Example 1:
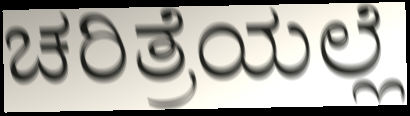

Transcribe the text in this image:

ಚರಿತ್ರೆಯಲ್ಲೆ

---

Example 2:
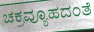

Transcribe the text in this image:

ಚಕ್ರವ್ಯೂಹದಂತೆ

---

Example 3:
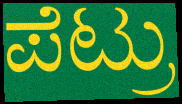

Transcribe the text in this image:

ಪೆಟ್ರು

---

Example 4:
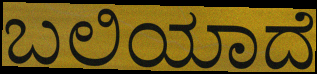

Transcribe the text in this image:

ಬಲಿಯಾದೆ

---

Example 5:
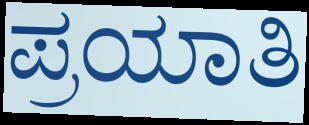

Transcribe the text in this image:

ಪ್ರಯಾತಿ